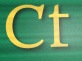
Ct